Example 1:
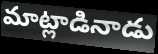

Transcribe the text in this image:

మాట్లాడినాడు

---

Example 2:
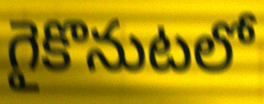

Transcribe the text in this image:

గైకొనుటలో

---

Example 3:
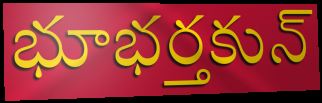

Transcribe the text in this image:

భూభర్తకున్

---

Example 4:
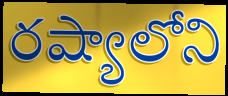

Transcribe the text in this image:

రష్యాలోని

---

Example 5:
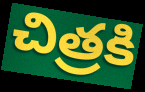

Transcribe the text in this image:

చిత్రకి